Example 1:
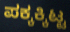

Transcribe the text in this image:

ಪಕ್ಕಕ್ಕಿಟ್ಟ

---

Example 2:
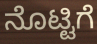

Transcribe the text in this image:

ನೊಟ್ಟಿಗೆ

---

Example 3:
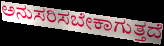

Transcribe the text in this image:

ಅನುಸರಿಸಬೇಕಾಗುತ್ತದೆ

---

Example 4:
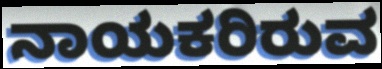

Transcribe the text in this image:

ನಾಯಕರಿರುವ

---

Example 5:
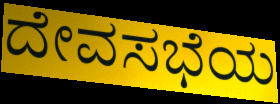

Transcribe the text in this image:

ದೇವಸಭೆಯ